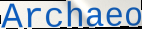
Archaeo